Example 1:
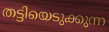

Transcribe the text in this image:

തട്ടിയെടുക്കുന്ന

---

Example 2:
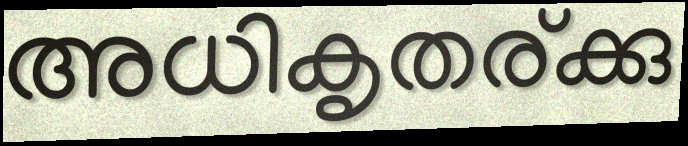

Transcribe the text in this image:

അധികൃതര്ക്കു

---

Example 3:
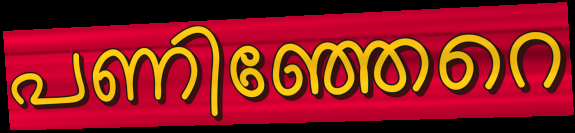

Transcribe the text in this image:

പണിഞ്ഞേറെ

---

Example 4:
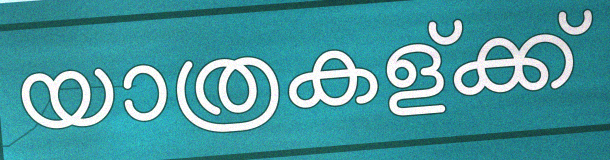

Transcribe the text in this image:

യാത്രകള്ക്ക്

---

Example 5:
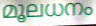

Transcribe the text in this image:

മൂലധനം